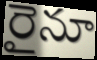
రైనూ